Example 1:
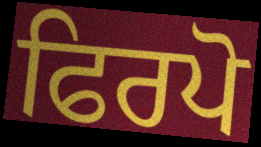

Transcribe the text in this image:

ਫਿਰਪੋ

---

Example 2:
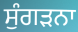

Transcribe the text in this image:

ਸੁੰਗੜਨਾ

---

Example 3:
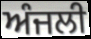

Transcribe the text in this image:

ਅੰਜਲੀ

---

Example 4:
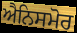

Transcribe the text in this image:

ਐਨਿਸਮੋਰ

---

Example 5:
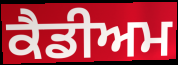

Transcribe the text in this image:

ਕੈਡੀਅਮ